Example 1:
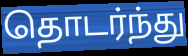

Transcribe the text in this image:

தொடர்ந்து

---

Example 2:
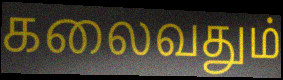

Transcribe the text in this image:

கலைவதும்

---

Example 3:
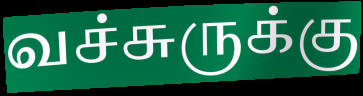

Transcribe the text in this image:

வச்சுருக்கு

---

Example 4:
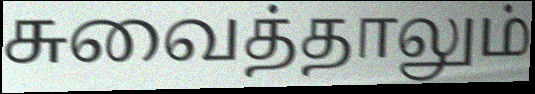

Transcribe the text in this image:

சுவைத்தாலும்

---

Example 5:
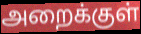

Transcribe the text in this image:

அறைக்குள்